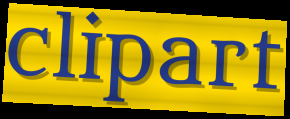
clipart